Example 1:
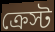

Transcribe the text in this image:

ক্রেস্ট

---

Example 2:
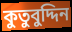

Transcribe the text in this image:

কুতুবুদ্দিন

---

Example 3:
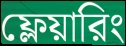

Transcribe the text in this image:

ফ্লেয়ারিং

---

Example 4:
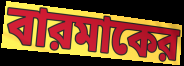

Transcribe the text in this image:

বারমাকের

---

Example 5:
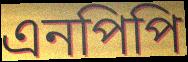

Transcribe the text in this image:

এনপিপি